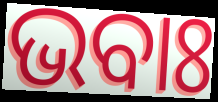
ଭବାଃ